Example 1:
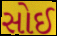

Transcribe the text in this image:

સોઈ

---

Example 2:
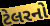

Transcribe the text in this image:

ટેલરનો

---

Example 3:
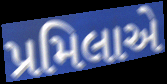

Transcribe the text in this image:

પ્રમિલાએ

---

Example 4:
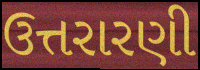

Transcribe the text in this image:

ઉત્તરારણી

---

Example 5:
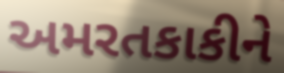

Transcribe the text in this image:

અમરતકાકીને